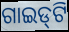
ଗାଇଡ୍‌ଟି